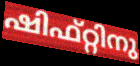
ഷിഫ്റ്റിനു